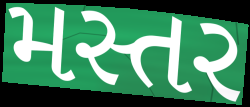
મસ્તર